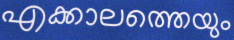
എക്കാലത്തെയും